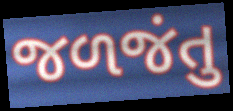
જળજંતુ